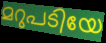
മറുപടിയേ